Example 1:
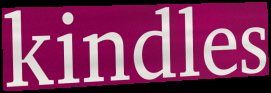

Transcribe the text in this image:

kindles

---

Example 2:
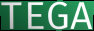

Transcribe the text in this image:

TEGA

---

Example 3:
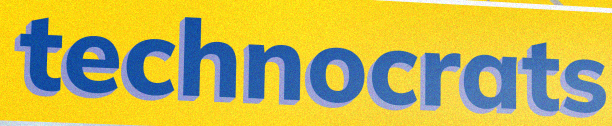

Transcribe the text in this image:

technocrats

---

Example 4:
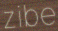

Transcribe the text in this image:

zibe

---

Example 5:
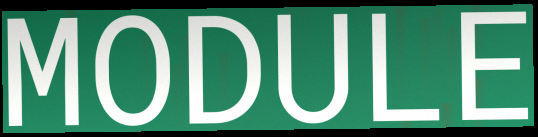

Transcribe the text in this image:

MODULE